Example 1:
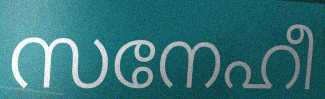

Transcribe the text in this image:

സനേഹീ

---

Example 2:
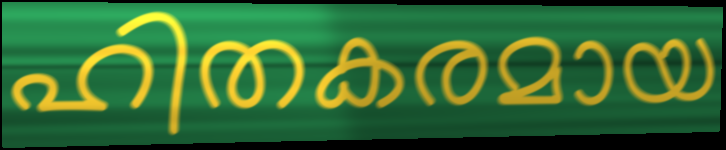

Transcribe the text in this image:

ഹിതകരമായ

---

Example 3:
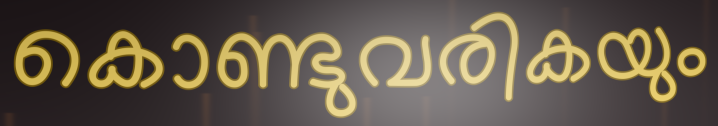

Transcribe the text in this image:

കൊണ്ടുവരികയും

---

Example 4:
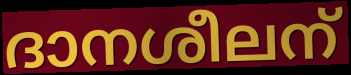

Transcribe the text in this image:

ദാനശീലന്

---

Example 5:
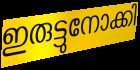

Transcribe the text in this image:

ഇരുട്ടുനോക്കി